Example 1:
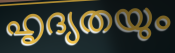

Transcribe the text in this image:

ഹൃദ്യതയും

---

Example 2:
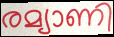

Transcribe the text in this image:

രമ്യാണി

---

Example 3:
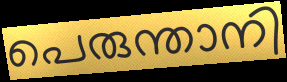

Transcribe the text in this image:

പെരുന്താനി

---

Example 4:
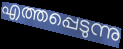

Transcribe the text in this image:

എത്തപ്പെടുന്നു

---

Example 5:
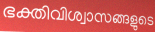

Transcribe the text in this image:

ഭക്തിവിശ്വാസങ്ങളുടെ